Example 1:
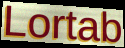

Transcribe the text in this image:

Lortab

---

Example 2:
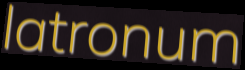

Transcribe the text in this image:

latronum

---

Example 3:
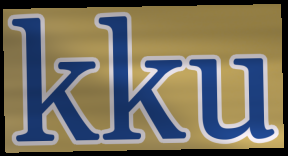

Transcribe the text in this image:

kku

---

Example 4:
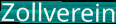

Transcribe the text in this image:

Zollverein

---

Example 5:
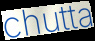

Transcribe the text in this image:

chutta